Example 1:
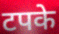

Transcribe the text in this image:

टपके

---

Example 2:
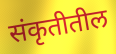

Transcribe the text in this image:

संकृतीतील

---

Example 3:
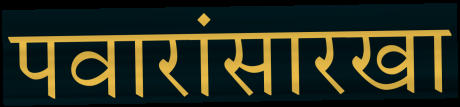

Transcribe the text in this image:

पवारांसारखा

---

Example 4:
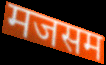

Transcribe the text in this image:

मजसम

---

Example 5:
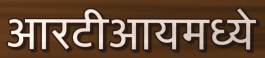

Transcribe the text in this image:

आरटीआयमध्ये